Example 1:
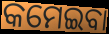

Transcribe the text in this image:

କମେଇବା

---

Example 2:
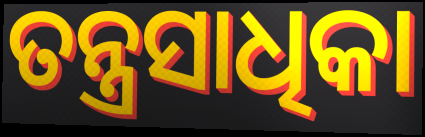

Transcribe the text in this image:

ତନ୍ତ୍ରସାଧିକା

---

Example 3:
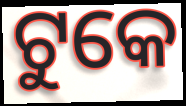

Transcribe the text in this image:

ଟୁକେ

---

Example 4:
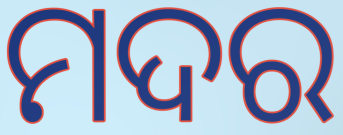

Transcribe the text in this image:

ମଦର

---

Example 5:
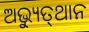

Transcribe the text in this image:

ଅଭ୍ୟୁତ୍‌ଥାନ